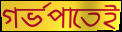
গৰ্ভপাতেই